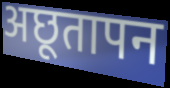
अछूतापन